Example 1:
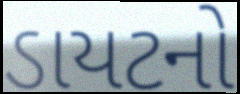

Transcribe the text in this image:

ડાયટનો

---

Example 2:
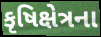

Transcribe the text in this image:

કૃષિક્ષેત્રના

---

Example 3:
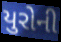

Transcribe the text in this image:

યુરોની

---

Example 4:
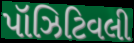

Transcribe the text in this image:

પૉઝિટિવલી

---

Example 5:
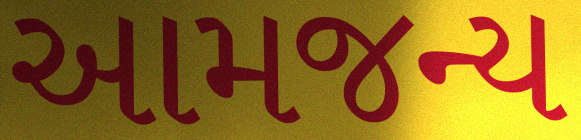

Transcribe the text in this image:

આમજન્ય